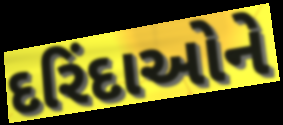
દરિંદાઓને